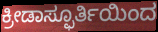
ಕ್ರೀಡಾಸ್ಫೂರ್ತಿಯಿಂದ